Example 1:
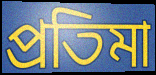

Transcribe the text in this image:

প্রতিমা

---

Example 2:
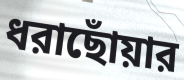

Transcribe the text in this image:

ধরাছোঁয়ার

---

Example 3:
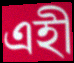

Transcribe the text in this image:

এহী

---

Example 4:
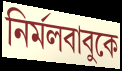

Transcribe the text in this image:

নির্মলবাবুকে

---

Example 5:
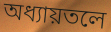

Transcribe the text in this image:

অধ্যায়তলে